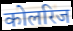
कोलरिज